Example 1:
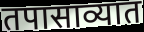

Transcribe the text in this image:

तपासाव्यात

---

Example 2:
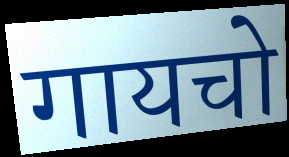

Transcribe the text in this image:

गायचो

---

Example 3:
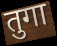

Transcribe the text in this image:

तुगा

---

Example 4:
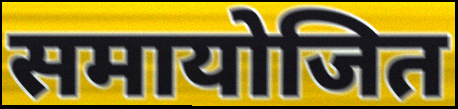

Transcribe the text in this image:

समायोजित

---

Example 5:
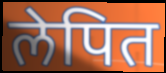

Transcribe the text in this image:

लेपित